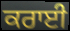
ਕਰਾਈ